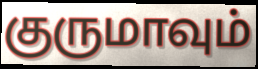
குருமாவும்